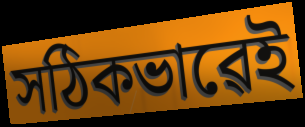
সঠিকভাৱেই